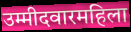
उम्मीदवारमहिला